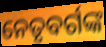
ନେତୃବର୍ଗଙ୍କ